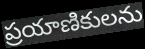
ప్రయాణికులను